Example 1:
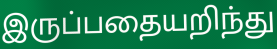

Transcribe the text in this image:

இருப்பதையறிந்து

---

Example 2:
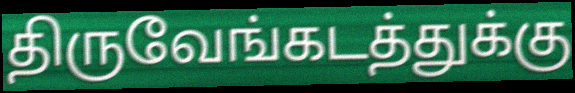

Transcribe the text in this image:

திருவேங்கடத்துக்கு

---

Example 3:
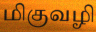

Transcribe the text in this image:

மிகுவழி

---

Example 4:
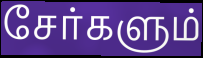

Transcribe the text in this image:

சேர்களும்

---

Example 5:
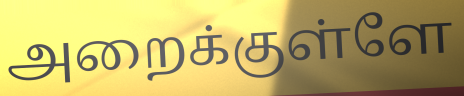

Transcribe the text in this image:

அறைக்குள்ளே